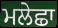
ਮਲੇਛਾ